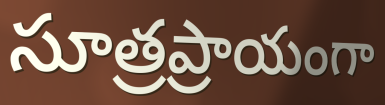
సూత్రప్రాయంగా